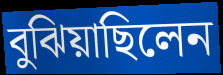
বুঝিয়াছিলেন